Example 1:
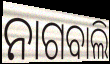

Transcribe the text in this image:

ନାଗବାଲି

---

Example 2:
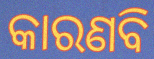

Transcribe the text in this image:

କାରଣବି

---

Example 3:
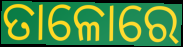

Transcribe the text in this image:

ତାଳୋରେ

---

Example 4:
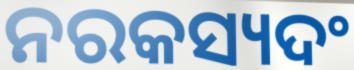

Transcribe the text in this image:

ନରକସ୍ୟଦଂ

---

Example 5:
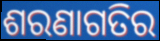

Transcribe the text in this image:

ଶରଣାଗତିର